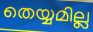
തെയ്യമില്ല